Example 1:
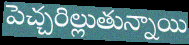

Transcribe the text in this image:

పెచ్చరిల్లుతున్నాయి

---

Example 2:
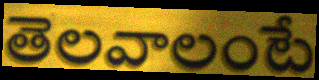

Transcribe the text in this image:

తెలవాలంటే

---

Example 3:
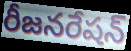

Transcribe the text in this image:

రీజనరేషన్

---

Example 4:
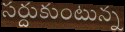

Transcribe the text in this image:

సర్దుకుంటున్న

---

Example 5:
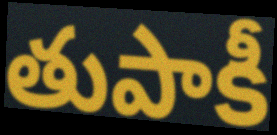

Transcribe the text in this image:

తుపాకీ